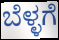
ಬೆಳ್ಳಗೆ